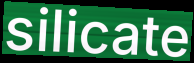
silicate